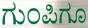
ಗುಂಪಿಗೂ